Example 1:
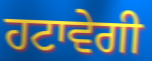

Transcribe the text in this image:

ਹਟਾਵੇਗੀ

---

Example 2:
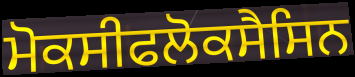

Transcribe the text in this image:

ਮੋਕਸੀਫਲੋਕਸੈਸਿਨ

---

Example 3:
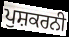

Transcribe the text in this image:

ਪੁਸ਼ਕਰਨੀ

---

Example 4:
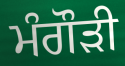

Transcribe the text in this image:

ਮੰਗੌੜੀ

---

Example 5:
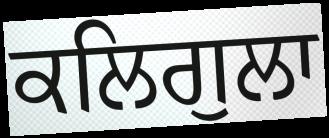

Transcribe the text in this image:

ਕਲਿਗੁਲਾ